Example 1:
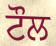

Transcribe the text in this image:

ਟੌਲ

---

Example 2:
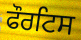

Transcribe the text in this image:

ਫੌਰਟਿਸ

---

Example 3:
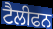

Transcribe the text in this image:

ਟੈਲੀਫਨ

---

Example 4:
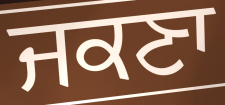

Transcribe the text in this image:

ਜਕਣਾ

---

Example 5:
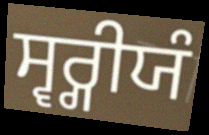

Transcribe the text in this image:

ਸ੍ਵਰ੍ਗੀਯੰ